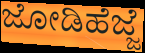
ಜೋಡಿಹೆಜ್ಜೆ